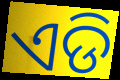
ଏଡି